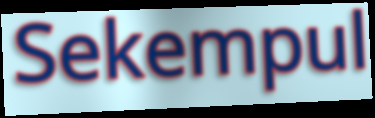
Sekempul